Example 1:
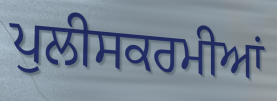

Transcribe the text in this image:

ਪੁਲੀਸਕਰਮੀਆਂ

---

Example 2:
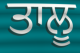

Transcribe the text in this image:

ਤਾਲੂ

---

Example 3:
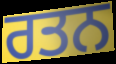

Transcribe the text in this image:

ਰਤਨ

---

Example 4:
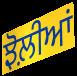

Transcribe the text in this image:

ਝੋਲ਼ੀਆਂ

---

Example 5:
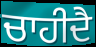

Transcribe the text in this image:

ਚਾਹੀਦੈ